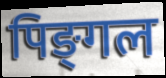
पिङ्गल